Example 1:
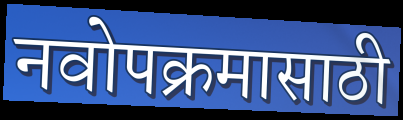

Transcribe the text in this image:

नवोपक्रमासाठी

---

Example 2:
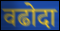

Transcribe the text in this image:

वढोदा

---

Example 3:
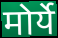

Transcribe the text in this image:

मोर्ये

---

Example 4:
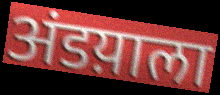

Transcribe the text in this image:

अंडय़ाला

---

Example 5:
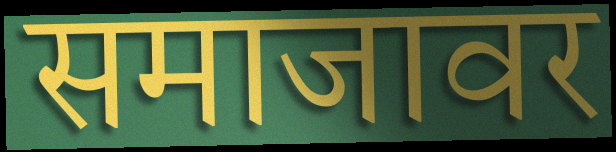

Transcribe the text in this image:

समाजावर